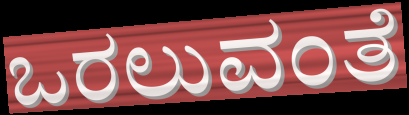
ಒರಲುವಂತೆ